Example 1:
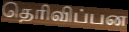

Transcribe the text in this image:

தெரிவிப்பன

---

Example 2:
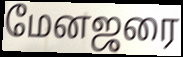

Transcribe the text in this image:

மேனஜரை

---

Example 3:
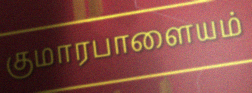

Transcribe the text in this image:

குமாரபாளையம்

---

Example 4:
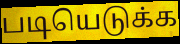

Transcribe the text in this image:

படியெடுக்க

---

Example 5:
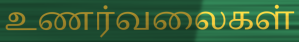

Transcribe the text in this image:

உணர்வலைகள்